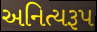
અનિત્યરૂપ